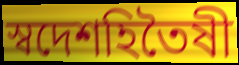
স্বদেশহিতৈষী